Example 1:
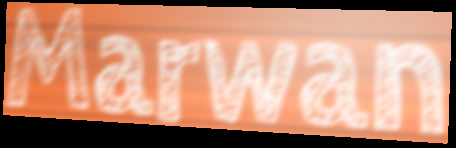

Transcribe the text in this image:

Marwan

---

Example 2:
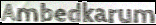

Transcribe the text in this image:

Ambedkarum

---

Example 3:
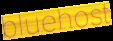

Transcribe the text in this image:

bluehost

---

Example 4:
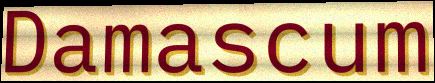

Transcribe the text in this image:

Damascum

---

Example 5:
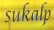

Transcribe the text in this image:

sukalp